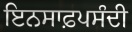
ਇਨਸਾਫ਼ਪਸੰਦੀ